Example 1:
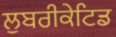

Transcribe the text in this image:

ਲੁਬਰੀਕੇਟਿਡ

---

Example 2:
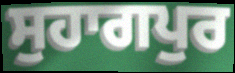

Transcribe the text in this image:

ਸੁਹਾਗਪੁਰ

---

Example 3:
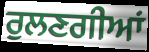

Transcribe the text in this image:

ਰੁਲਣਗੀਆਂ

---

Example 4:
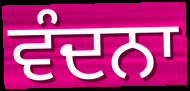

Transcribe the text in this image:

ਵੰਦਨਾ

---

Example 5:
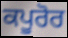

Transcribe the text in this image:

ਕਪੂਰੋਰ